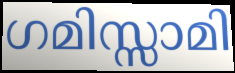
ഗമിസ്സാമി